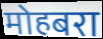
मोहबरा